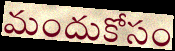
మందుకోసం